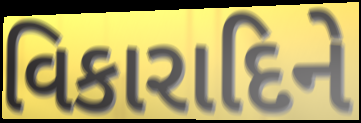
વિકારાદિને